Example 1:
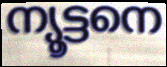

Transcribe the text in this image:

ന്യൂട്ടനെ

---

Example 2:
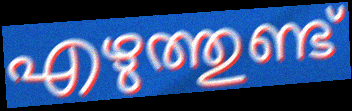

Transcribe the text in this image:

എഴുത്തുണ്ട്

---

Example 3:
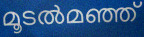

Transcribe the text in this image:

മൂടൽമഞ്ഞ്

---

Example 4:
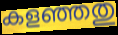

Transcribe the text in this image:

കളഞ്ഞതു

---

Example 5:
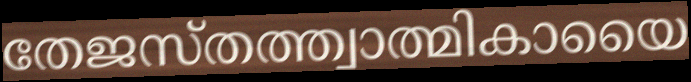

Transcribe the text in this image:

തേജസ്തത്ത്വാത്മികായൈ